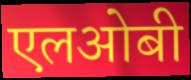
एलओबी